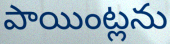
పాయింట్లను